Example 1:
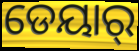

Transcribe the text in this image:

ଡେୟାର୍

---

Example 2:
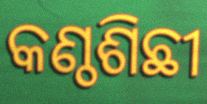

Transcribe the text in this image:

କଣ୍ଠଶିଛୀ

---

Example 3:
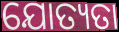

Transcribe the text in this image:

ଯୋତ୍ୟତା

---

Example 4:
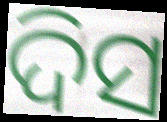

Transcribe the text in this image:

ଦିସ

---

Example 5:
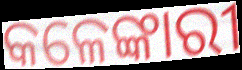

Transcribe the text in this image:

କଳେଙ୍କାରୀ